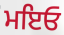
ਮਇਓ